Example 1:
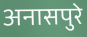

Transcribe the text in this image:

अनासपुरे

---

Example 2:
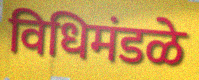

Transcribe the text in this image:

विधिमंडळे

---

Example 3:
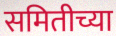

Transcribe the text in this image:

समितीच्या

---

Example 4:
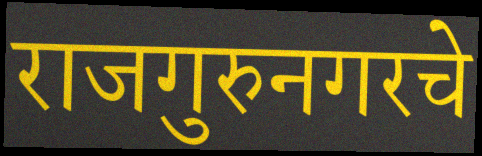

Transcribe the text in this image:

राजगुरुनगरचे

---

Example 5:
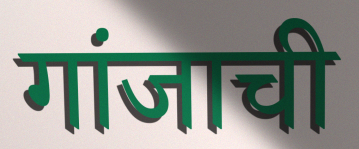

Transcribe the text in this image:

गांजाची